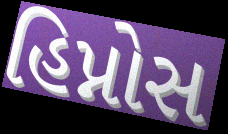
હિપ્નોસ